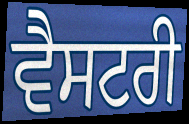
ਵੈਸਟਰੀ